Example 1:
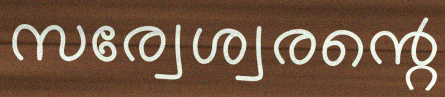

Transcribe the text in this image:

സര്വേശ്വരന്റെ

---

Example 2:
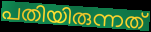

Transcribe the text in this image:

പതിയിരുന്നത്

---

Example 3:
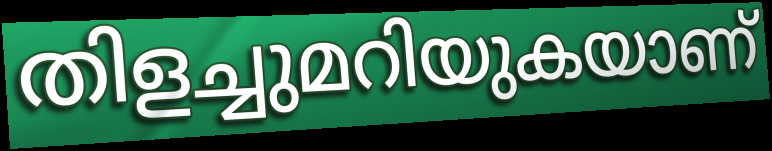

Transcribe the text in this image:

തിളച്ചുമറിയുകയാണ്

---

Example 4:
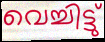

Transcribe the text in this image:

വെച്ചിട്ടു്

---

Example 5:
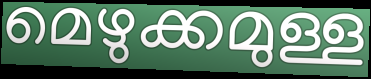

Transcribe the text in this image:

മെഴുക്കമുള്ള